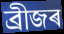
ব্ৰীজৰ